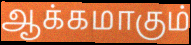
ஆக்கமாகும்